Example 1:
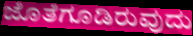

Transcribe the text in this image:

ಜೊತೆಗೂಡಿರುವುದು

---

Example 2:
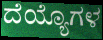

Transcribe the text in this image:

ದೆಯ್ಯೊಗಳ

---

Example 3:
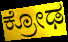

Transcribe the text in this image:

ಕ್ರೋಢ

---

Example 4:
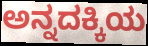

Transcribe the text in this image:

ಅನ್ನದಕ್ಕಿಯ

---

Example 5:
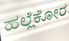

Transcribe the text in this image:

ಹಲ್ಲೆಕೋರ